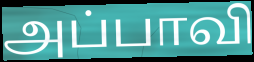
அப்பாவி